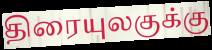
திரையுலகுக்கு